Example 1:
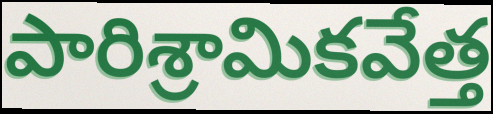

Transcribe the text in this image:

పారిశ్రామికవేత్త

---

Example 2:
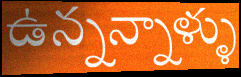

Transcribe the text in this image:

ఉన్నన్నాళ్ళు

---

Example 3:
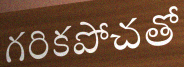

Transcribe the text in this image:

గరికపోచతో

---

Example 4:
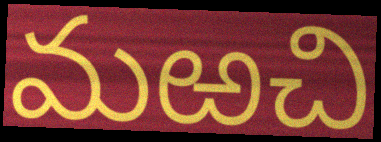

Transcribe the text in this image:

మఱచి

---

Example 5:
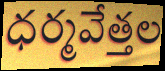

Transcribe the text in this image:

ధర్మవేత్తల